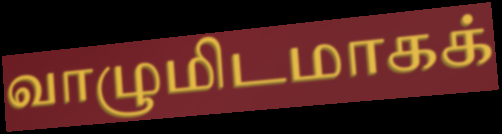
வாழுமிடமாகக்